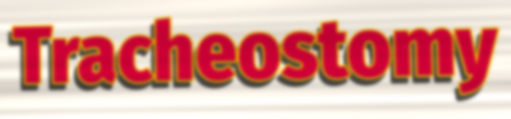
Tracheostomy